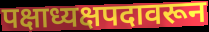
पक्षाध्यक्षपदावरून